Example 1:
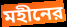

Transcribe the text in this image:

মহীনের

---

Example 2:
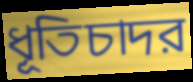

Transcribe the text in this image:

ধূতিচাদর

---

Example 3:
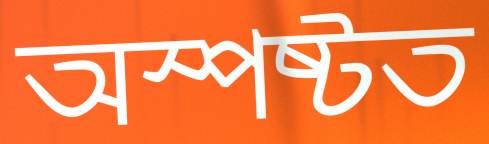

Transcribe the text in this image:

অস্পষ্টত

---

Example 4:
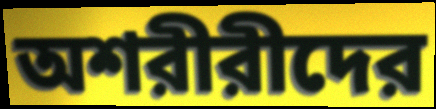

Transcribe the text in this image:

অশরীরীদের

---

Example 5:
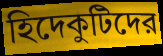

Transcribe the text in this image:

হিদেকুটিদের